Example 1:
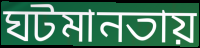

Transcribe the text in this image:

ঘটমানতায়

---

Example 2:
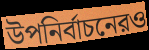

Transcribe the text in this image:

উপনির্বাচনেরও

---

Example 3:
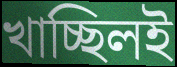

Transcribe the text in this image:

খাচ্ছিলই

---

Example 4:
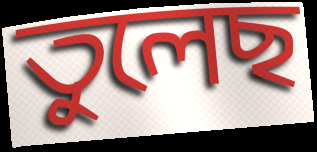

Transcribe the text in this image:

তুলেছ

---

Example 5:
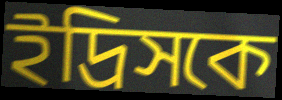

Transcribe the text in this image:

ইদ্রিসকে